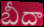
బీదా